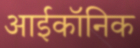
आईकॉनिक